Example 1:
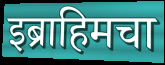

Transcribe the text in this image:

इब्राहिमचा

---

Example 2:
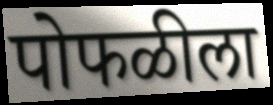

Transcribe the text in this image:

पोफळीला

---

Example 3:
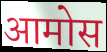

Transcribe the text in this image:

आमोस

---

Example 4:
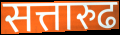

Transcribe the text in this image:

सत्तारुढ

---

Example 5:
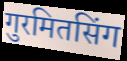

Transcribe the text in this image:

गुरमितसिंग